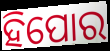
ହିପୋର